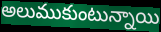
అలుముకుంటున్నాయి